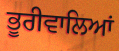
ਭੂਰੀਵਾਲਿਆਂ